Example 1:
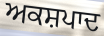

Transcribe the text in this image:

ਅਕਸ਼ਪਾਦ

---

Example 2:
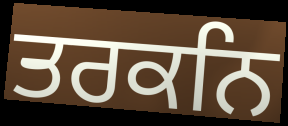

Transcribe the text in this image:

ਤਰਕਨਿ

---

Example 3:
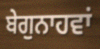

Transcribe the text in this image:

ਬੇਗੁਨਾਹਵਾਂ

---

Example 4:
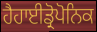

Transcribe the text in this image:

ਹੈਹਾਈਡ੍ਰੋਪੋਨਿਕ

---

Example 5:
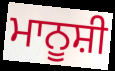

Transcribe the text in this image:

ਮਾਨੂਸ਼ੀ